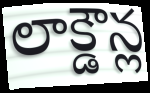
లాక్డౌన్ల